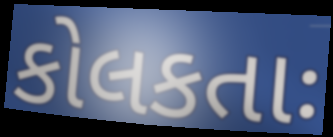
કોલકતાઃ